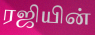
ரஜியின்